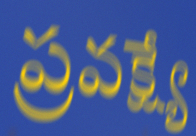
ప్రవక్ష్యే